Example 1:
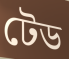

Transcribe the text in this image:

টেড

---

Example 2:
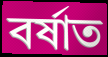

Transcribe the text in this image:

বৰ্ষাত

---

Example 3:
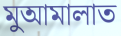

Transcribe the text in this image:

মুআমালাত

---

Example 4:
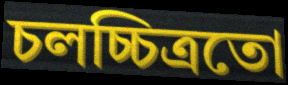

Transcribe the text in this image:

চলচ্চিত্ৰতো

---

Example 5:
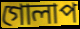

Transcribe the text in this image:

গোলাপ